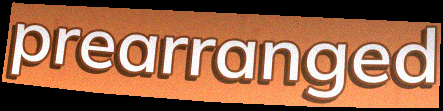
prearranged